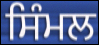
ਸਿੰਮਲ